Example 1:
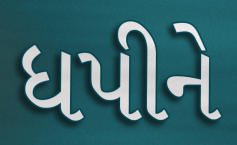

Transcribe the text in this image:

ધપીને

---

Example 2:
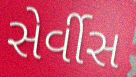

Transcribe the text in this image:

સેર્વીસ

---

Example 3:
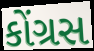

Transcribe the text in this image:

કોંગ્રસ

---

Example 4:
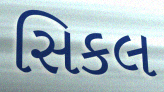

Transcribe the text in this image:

સિકલ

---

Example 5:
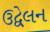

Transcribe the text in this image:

ઉદ્વેલન